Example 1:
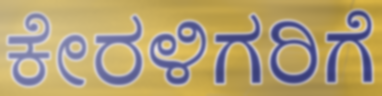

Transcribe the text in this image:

ಕೇರಳಿಗರಿಗೆ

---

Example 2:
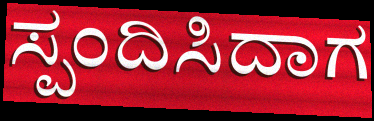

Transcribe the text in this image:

ಸ್ಪಂದಿಸಿದಾಗ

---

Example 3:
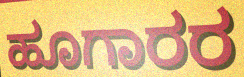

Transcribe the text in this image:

ಹೂಗಾರರ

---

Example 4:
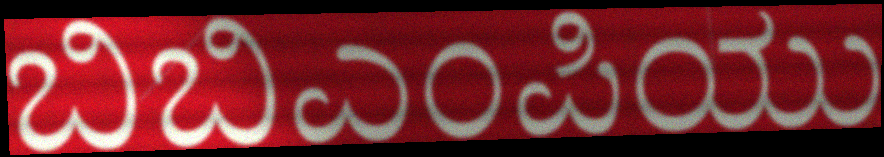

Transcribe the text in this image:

ಬಿಬಿಎಂಪಿಯು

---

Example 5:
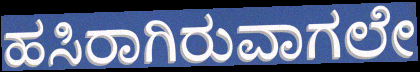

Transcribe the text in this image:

ಹಸಿರಾಗಿರುವಾಗಲೇ